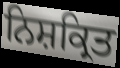
ਨਿਸ਼ਕ੍ਰਿਤ